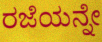
ರಜೆಯನ್ನೇ